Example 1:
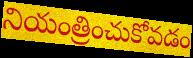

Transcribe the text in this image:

నియంత్రించుకోవడం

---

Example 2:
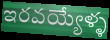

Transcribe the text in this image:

ఇరవయ్యేళ్ళ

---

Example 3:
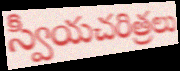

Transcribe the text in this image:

స్వీయచరిత్రలు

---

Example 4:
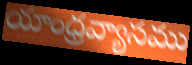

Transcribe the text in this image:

యాంధ్రవ్యాసము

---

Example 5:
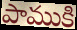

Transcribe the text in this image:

పాముకి